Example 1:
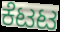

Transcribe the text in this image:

ಕೆಟಟ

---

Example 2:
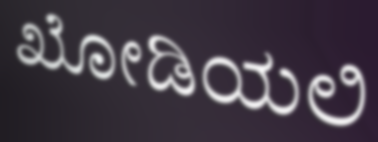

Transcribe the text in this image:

ಖೋಡಿಯಲಿ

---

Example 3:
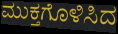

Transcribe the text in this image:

ಮುಕ್ತಗೊಳಿಸಿದ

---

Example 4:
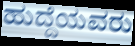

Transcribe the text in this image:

ಹುದ್ದೆಯವರು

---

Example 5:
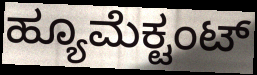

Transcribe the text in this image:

ಹ್ಯೂಮೆಕ್ಟಂಟ್